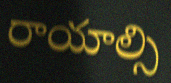
రాయాల్సి